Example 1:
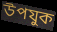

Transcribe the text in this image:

উপযুক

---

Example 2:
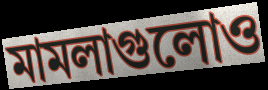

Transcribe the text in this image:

মামলাগুলোও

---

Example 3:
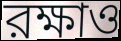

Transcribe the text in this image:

রক্ষাও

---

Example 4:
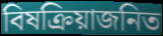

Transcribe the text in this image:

বিষক্রিয়াজনিত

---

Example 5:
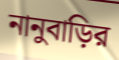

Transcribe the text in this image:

নানুবাড়ির